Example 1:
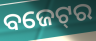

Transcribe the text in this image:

ବଜେଟ୍‌ର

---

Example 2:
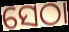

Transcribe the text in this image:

ସେଠା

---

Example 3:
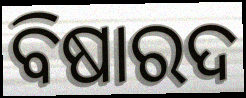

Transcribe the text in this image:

ବିଷାରଦ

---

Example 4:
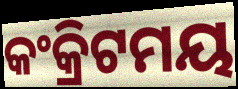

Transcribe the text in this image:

କଂକ୍ରିଟମୟ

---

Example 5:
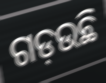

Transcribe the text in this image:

ଗଡ଼ଉଛି